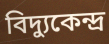
বিদ্যুকেন্দ্র